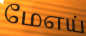
மேஎய்